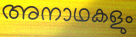
അനാഥകളും